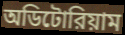
অডিটোরিয়াম